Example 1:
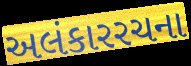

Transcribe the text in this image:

અલંકારરચના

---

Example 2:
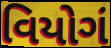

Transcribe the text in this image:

વિયોગં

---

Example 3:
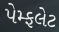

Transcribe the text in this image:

પેમ્ફલેટ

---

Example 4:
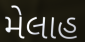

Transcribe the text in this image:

મેલાહ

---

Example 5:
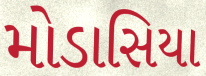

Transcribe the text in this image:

મોડાસિયા